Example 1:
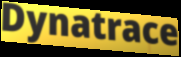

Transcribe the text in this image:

Dynatrace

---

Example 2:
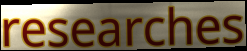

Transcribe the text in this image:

researches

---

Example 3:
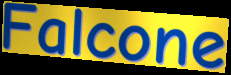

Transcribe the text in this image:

Falcone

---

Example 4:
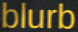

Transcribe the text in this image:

blurb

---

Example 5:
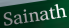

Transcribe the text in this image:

Sainath